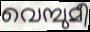
വെമ്പുമീ